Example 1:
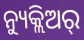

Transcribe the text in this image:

ନ୍ୟୁକ୍ଲିଅର୍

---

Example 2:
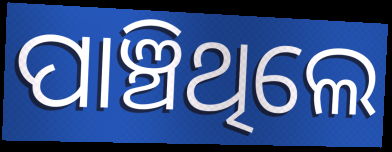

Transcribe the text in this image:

ପାଞ୍ଚିଥିଲେ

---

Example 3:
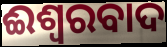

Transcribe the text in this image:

ଈଶ୍ବରବାଦ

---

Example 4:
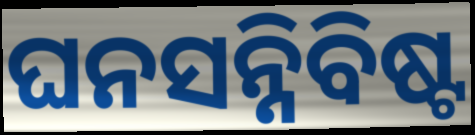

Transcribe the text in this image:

ଘନସନ୍ନିବିଷ୍ଟ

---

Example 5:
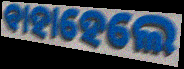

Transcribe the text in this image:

ବାହାହେଲେ